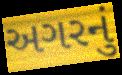
અગરનું